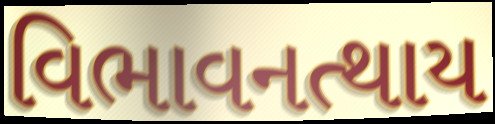
વિભાવનત્થાય